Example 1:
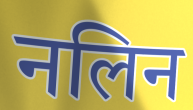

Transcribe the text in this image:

नलिन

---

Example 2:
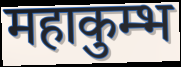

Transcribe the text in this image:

महाकुम्भ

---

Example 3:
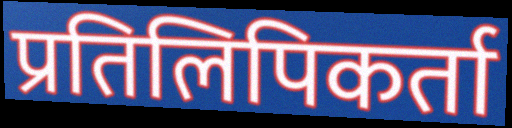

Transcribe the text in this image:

प्रतिलिपिकर्ता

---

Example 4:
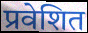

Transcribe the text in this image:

प्रवेशित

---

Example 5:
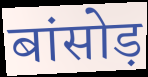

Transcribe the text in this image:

बांसोड़